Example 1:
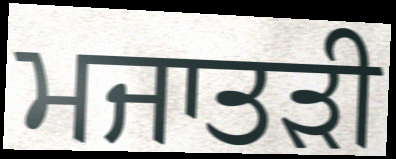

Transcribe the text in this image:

ਮਜਾਤੜੀ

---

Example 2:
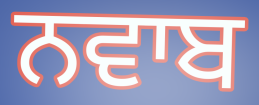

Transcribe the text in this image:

ਨਵਾਬ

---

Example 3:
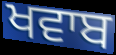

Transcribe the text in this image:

ਖਵਾਬ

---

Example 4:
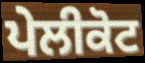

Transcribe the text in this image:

ਪੇਲੀਕੋਟ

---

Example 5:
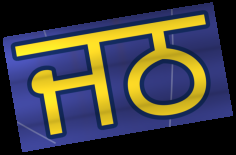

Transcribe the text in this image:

ਜਠ